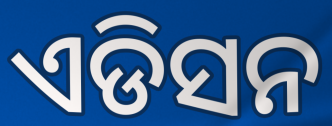
ଏଡିସନ